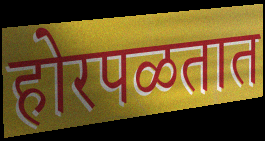
होरपळतात